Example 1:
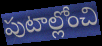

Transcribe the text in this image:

పుటాల్లోంచి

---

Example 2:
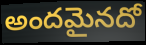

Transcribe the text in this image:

అందమైనదో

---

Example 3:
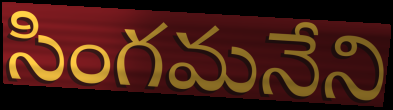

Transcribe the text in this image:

సింగమనేని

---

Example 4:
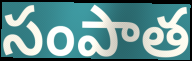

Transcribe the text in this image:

సంపాత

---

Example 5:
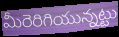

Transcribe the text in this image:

మీరెరిగియున్నట్టు